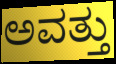
ಅವತ್ತು